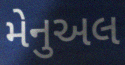
મેનુઅલ